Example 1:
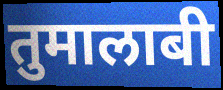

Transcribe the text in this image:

तुमालाबी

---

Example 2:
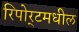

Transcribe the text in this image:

रिपोर्टमधील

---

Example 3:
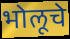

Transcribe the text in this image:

भोलूचे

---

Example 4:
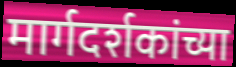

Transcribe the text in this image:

मार्गदर्शकांच्या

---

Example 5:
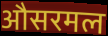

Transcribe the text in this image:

औसरमल